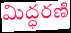
మిద్ధరణి